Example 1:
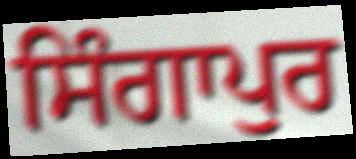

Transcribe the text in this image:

ਸਿੰਗਾਪੁਰ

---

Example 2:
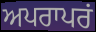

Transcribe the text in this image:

ਅਪਰਾਪਰਂ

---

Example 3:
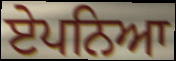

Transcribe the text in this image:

ਏਪਨਿਆ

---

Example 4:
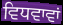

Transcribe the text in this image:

ਵਿਧਵਾਵਾਂ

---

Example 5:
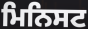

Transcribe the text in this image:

ਮਿਨਿਸਟ